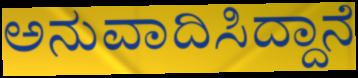
ಅನುವಾದಿಸಿದ್ದಾನೆ